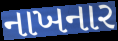
નાખનાર